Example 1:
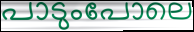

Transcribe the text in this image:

പാടുംപോലെ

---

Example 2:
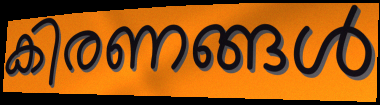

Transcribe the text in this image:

കിരണങ്ങൾ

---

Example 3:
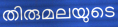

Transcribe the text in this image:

തിരുമലയുടെ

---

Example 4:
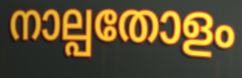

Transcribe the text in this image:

നാല്പതോളം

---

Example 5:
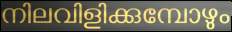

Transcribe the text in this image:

നിലവിളിക്കുമ്പോഴും